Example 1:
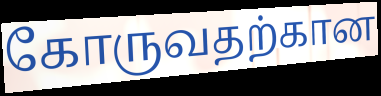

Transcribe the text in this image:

கோருவதற்கான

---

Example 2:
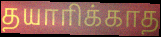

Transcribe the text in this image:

தயாரிக்காத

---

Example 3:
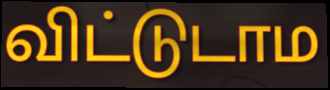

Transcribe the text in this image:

விட்டுடாம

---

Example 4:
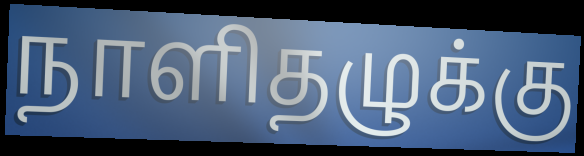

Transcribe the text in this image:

நாளிதழுக்கு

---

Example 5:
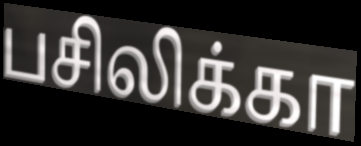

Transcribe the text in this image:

பசிலிக்கா